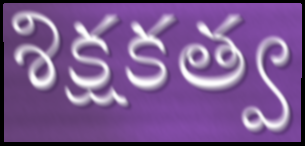
శిక్షకత్వ